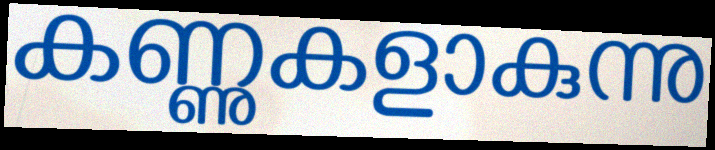
കണ്ണുകളാകുന്നു